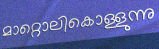
മാറ്റൊലികൊള്ളുന്നു